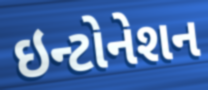
ઇન્ટોનેશન